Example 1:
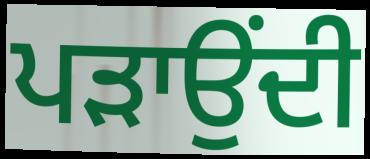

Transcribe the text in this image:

ਪੜਾਉਂਦੀ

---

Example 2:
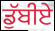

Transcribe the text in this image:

ਡੁੱਬੀਏ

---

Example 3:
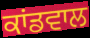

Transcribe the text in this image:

ਕਾਂਡਵਾਲ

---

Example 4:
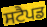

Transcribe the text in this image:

ਸਟੈਪਡ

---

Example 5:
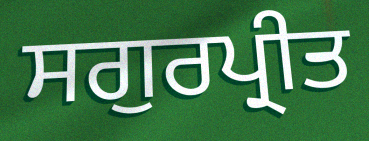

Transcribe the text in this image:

ਸਗੁਰਪ੍ਰੀਤ